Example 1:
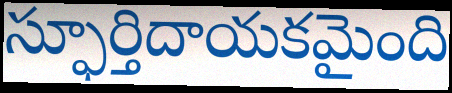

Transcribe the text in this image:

స్ఫూర్తిదాయకమైంది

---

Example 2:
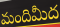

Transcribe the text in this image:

మందిమీద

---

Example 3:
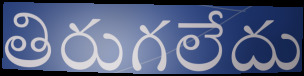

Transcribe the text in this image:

తిరుగలేదు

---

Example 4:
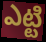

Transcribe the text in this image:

ఎట్టి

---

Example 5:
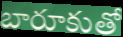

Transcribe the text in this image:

బారూకుతో